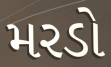
મરડો